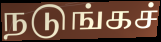
நடுங்கச்